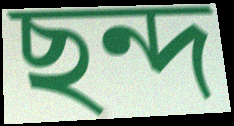
ছন্দ